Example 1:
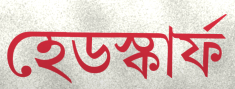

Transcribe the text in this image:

হেডস্কার্ফ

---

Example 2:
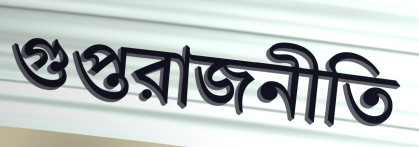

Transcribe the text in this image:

গুপ্তরাজনীতি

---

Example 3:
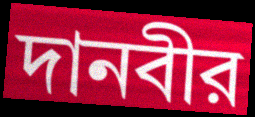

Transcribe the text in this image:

দানবীর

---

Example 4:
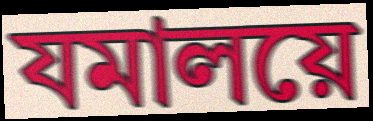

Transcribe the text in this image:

যমালয়ে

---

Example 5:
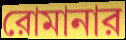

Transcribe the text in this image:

রোমানার